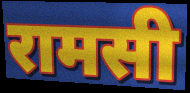
रामसी